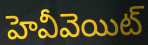
హెవీవెయిట్